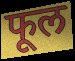
फूल